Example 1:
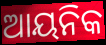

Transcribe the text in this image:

ଆୟନିକ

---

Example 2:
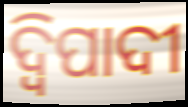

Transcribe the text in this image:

ଦ୍ୱିପାଦୀ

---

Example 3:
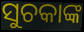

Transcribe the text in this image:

ସୁଚକାଙ୍କ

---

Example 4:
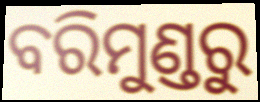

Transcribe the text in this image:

ବରିମୁଣ୍ଡରୁ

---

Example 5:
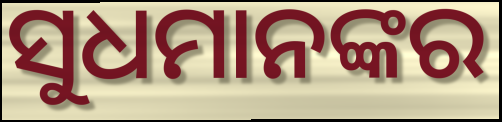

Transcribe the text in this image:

ସୁଧମାନଙ୍କର